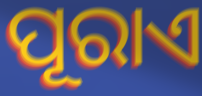
ପୂରାଏ